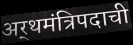
अर्थमंत्रिपदाची